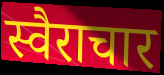
स्वैराचार